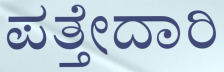
ಪತ್ತೇದಾರಿ